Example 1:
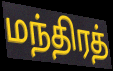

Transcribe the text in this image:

மந்திரத்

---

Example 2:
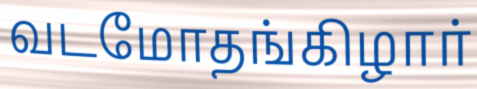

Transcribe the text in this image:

வடமோதங்கிழார்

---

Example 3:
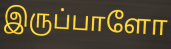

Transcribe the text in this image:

இருப்பாளோ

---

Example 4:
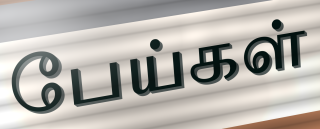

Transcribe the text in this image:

பேய்கள்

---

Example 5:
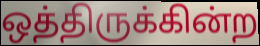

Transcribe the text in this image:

ஒத்திருக்கின்ற